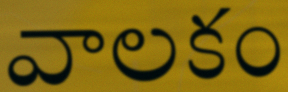
వాలకం